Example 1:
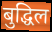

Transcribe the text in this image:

बुद्धिल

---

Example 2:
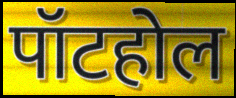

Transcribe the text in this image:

पॉटहोल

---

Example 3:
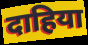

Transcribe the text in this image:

दाहिया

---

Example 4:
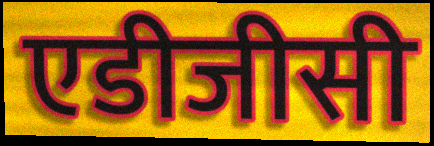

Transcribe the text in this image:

एडीजीसी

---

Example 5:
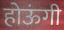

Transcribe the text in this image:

होऊंगी